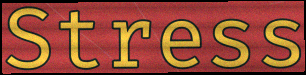
Stress